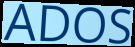
ADOS